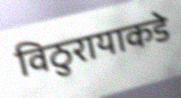
विठुरायाकडे